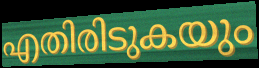
എതിരിടുകയും